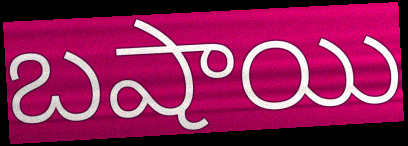
బషాయి